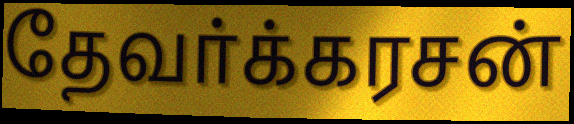
தேவர்க்கரசன்